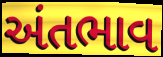
અંતભાવ